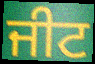
ਜੀਟ